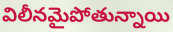
విలీనమైపోతున్నాయి